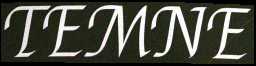
TEMNE